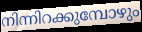
നിന്നിറക്കുമ്പോഴും